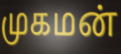
முகமன்